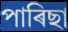
পাৰিছা